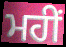
ਮਹੀਂ